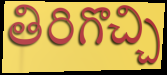
తిరిగొచ్చి